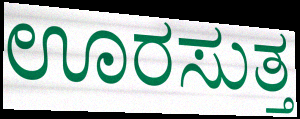
ಊರಸುತ್ತ